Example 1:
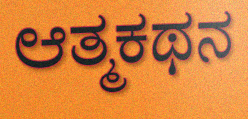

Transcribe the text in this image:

ಆತ್ಮಕಥನ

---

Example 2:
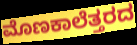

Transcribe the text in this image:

ಮೊಣಕಾಲೆತ್ತರದ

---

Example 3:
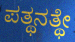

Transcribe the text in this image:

ಪತ್ಥನತ್ಥೇ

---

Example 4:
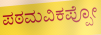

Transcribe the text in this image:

ಪಠಮವಿಕಪ್ಪೋ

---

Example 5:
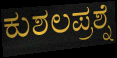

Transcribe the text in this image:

ಕುಶಲಪ್ರಶ್ನೆ